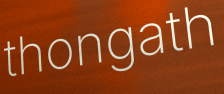
thongath